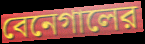
বেনেগালের